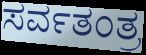
ಸರ್ವತಂತ್ರ